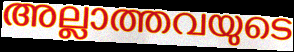
അല്ലാത്തവയുടെ